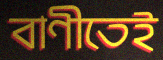
বাণীতেই